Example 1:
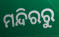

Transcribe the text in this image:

ମନ୍ଦିରରୁ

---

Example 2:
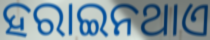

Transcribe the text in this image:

ହରାଇନଥାଏ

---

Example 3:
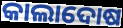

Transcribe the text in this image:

କାଲାଦୋଷ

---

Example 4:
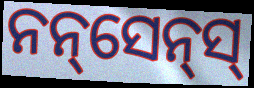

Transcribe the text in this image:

ନନ୍‌ସେନ୍‌ସ୍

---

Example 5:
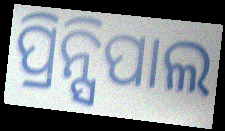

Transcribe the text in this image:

ପ୍ରିନ୍ସିପାଲ